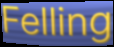
Felling